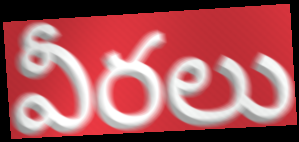
వీరలు